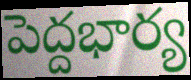
పెద్దభార్య